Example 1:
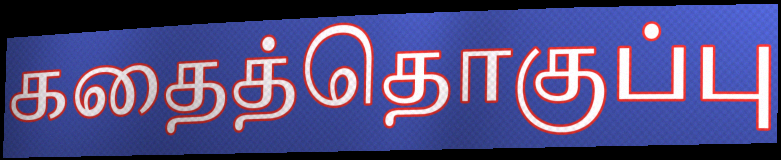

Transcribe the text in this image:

கதைத்தொகுப்பு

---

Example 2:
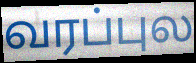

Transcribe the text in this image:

வரப்புல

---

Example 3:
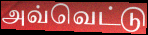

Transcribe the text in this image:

அவ்வெட்டு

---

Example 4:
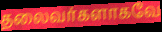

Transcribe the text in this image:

தலைவர்களாகவே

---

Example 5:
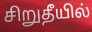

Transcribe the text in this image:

சிறுதீயில்